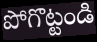
పోగొట్టండి